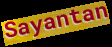
Sayantan